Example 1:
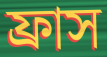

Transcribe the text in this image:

ফ্রাস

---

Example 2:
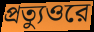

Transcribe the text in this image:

প্রত্যুওরে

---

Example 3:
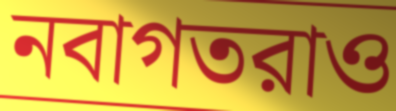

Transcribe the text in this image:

নবাগতরাও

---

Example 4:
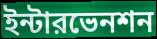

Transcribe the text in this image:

ইন্টারভেনশন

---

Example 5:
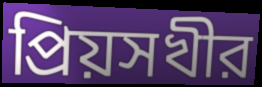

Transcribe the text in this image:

প্রিয়সখীর